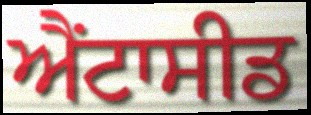
ਐਂਟਾਸੀਡ